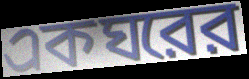
একঘরের